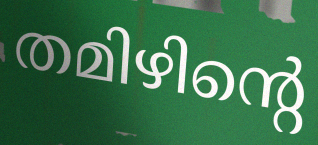
തമിഴിന്റെ